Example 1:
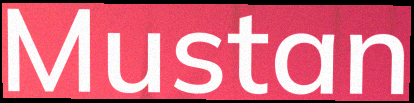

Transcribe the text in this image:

Mustan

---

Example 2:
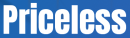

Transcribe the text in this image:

Priceless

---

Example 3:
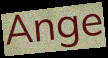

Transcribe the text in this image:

Ange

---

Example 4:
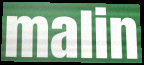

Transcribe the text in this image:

malin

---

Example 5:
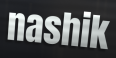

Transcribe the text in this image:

nashik